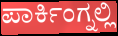
ಪಾರ್ಕಿಂಗ್ನಲ್ಲಿ